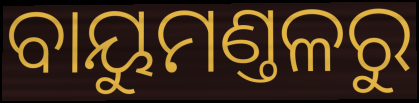
ବାୟୁମଣ୍ତଳରୁ